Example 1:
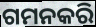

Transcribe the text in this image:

ଗମନକରି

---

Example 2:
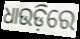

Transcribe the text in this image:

ଧାଉଡ଼ିରେ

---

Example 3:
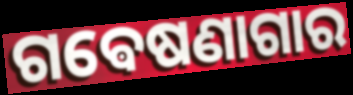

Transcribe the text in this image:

ଗଵେଷଣାଗାର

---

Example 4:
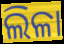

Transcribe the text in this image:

ଲିଳା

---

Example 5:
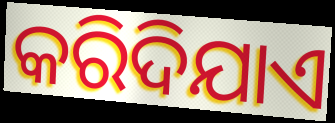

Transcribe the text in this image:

କରିଦିଯାଏ